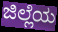
ಜಿಲ್ಲೆಯ